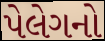
પેલેગનો